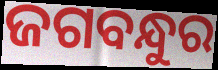
ଜଗବନ୍ଧୁର